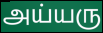
அய்யரு